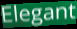
Elegant